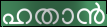
ഹതാൻ